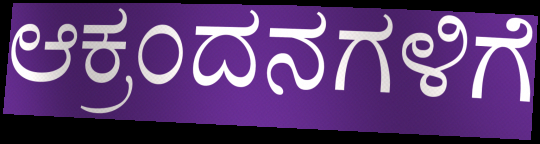
ಆಕ್ರಂದನಗಳಿಗೆ